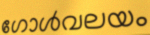
ഗോൾവലയം